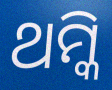
ଥମ୍କି